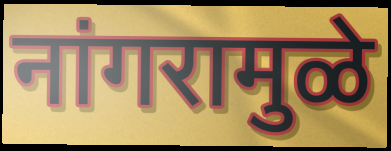
नांगरामुळे